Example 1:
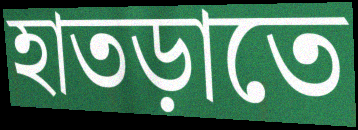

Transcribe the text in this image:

হাতড়াতে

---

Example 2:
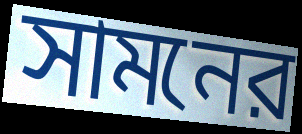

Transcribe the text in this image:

সামনের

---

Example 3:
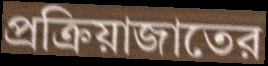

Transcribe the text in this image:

প্রক্রিয়াজাতের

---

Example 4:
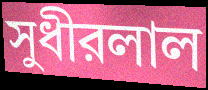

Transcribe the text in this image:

সুধীরলাল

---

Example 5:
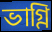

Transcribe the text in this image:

ভাগ্নি